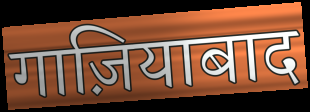
गाज़ियाबाद